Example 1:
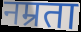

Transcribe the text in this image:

नम्रता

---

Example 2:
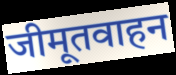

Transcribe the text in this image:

जीमूतवाहन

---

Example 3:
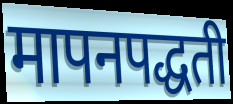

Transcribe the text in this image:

मापनपद्धती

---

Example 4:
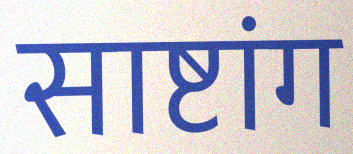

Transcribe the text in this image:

साष्टांग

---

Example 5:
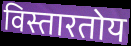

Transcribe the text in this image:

विस्तारतोय